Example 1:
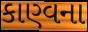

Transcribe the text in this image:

કાણ્વના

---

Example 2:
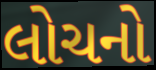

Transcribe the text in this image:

લોચનો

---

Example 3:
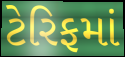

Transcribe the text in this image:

ટેરિફમાં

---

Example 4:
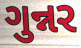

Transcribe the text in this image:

ગુન્નર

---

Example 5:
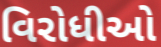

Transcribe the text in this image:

વિરોધીઓ